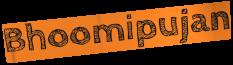
Bhoomipujan